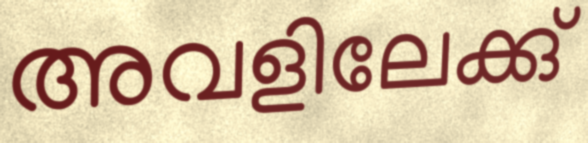
അവളിലേക്കു്